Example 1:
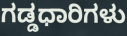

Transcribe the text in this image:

ಗಡ್ಡಧಾರಿಗಳು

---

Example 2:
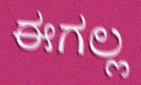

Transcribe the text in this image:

ಈಗಲ್ಲ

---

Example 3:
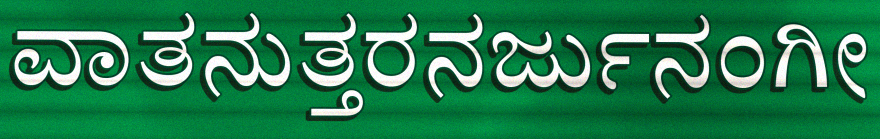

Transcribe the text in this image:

ವಾತನುತ್ತರನರ್ಜುನಂಗೀ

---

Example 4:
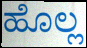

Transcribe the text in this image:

ಹೊಲ್ಲ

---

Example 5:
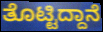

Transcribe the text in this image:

ತೊಟ್ಟಿದ್ದಾನೆ